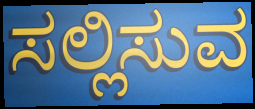
ಸಲ್ಲಿಸುವ